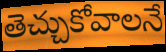
తెచ్చుకోవాలనే